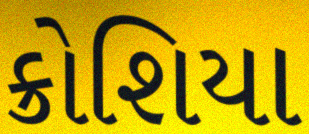
ક્રોશિયા